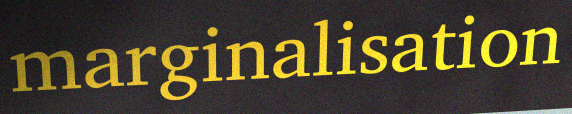
marginalisation